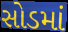
સોડમાં